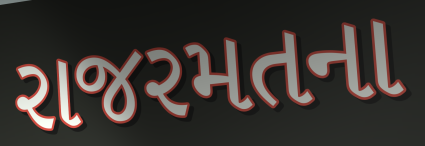
રાજરમતના